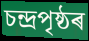
চন্দ্ৰপৃষ্ঠৰ